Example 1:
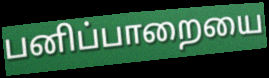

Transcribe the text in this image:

பனிப்பாறையை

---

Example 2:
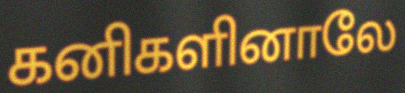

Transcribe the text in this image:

கனிகளினாலே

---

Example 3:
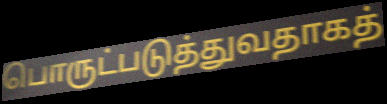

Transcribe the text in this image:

பொருட்படுத்துவதாகத்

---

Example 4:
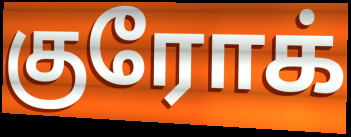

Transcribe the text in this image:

குரோக்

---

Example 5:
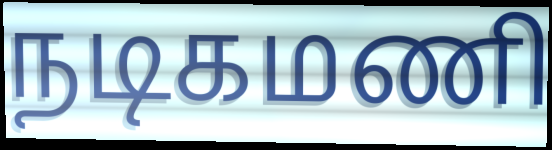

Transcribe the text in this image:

நடிகமணி